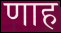
णाह